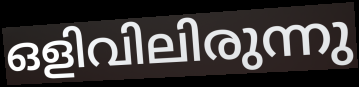
ഒളിവിലിരുന്നു